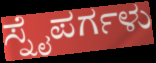
ಸ್ನೈಪರ್ಗಳು